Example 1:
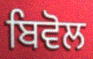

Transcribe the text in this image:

ਬਿਵੋਲ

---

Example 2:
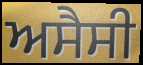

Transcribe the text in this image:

ਅਸੈਸੀ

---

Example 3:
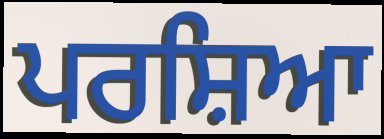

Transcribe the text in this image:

ਪਰਸ਼ਿਆ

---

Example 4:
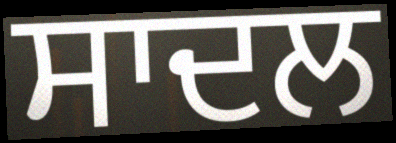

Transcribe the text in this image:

ਸਾਦਲ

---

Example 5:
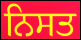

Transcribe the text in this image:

ਨਿਸਤ